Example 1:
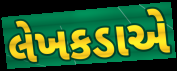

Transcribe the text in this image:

લેખકડાએ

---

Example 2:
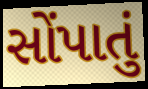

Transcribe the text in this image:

સોંપાતું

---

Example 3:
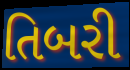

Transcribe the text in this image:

તિબરી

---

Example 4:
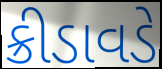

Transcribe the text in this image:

ક્રીડાવડે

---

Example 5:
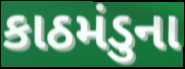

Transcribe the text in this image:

કાઠમંડુના